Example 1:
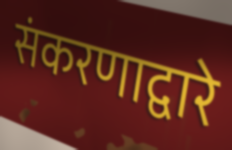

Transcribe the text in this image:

संकरणाद्वारे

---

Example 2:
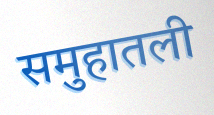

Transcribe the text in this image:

समुहातली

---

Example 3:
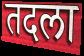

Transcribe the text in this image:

तदला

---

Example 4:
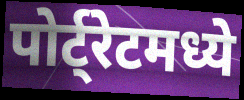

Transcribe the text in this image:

पोर्ट्रेटमध्ये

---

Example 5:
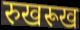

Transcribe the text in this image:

रुखरूख